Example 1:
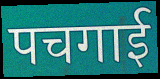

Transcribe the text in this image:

पचगाई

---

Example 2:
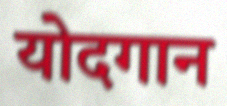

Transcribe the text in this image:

योदगान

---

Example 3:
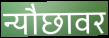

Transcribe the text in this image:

न्यौछावर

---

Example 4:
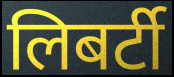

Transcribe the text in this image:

लिबर्टी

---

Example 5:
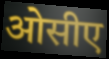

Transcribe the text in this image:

ओसीए